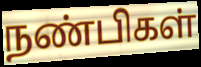
நண்பிகள்